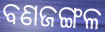
ବଣଜଙ୍ଗଳ